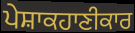
ਪੇਸ਼ਾਕਹਾਣੀਕਾਰ